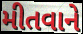
મીતવાને